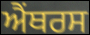
ਐਂਥਰਸ